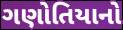
ગણોતિયાનો